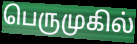
பெருமுகில்